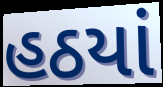
હઠયાં